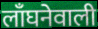
लाँघनेवाली